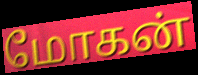
மோகன்